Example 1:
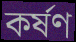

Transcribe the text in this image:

কৰ্ষণ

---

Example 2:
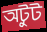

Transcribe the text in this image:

অটুট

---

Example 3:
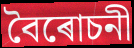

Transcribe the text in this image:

বৈৰোচনী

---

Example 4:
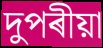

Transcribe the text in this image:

দুপৰীয়া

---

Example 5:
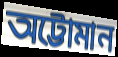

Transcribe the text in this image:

অট্টোমান